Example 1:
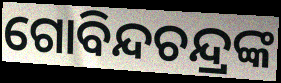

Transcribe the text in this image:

ଗୋବିନ୍ଦଚନ୍ଦ୍ରଙ୍କ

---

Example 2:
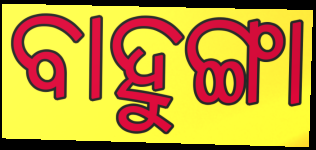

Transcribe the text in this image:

ବାହୁଙ୍ଗା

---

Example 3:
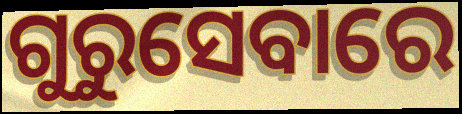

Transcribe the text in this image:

ଗୁରୁସେବାରେ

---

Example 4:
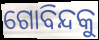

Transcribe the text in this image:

ଗୋବିନ୍ଦକୁ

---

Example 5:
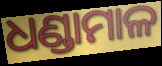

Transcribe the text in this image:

ଧଣ୍ଡାମାଳ